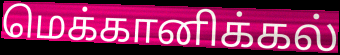
மெக்கானிக்கல்